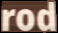
rod